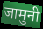
जामुनी